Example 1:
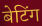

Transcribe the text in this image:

बेटिंग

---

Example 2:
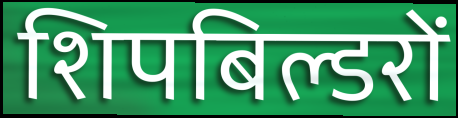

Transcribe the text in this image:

शिपबिल्डरों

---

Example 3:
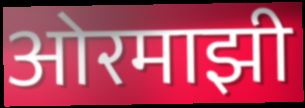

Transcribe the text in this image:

ओरमाझी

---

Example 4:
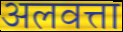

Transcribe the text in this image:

अलवत्ता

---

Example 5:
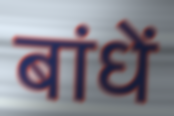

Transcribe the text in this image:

बांधें